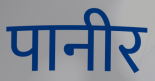
पानीर